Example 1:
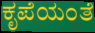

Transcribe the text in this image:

ಕೃಪೆಯಂತೆ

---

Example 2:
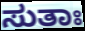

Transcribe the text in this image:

ಸುತಾಃ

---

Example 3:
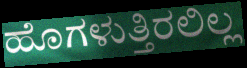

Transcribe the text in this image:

ಹೊಗಳುತ್ತಿರಲಿಲ್ಲ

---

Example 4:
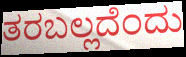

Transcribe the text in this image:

ತರಬಲ್ಲದೆಂದು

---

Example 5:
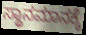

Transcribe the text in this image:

ಸ್ಥಾನಮಾನಕ್ಕೆ